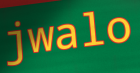
jwalo